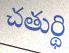
చతుర్థి